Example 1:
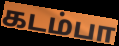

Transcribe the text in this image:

கடம்பா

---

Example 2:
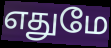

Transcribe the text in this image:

எதுமே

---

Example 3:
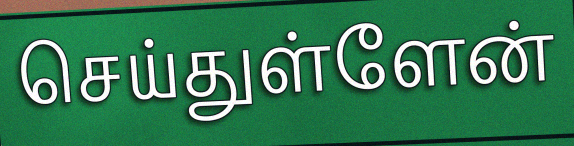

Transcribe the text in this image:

செய்துள்ளேன்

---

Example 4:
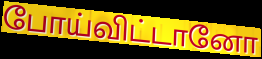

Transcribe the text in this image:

போய்விட்டானோ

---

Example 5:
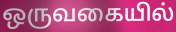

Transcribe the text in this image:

ஒருவகையில்